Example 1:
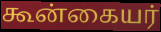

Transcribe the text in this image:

கூன்கையர்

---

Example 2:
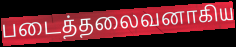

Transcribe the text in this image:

படைத்தலைவனாகிய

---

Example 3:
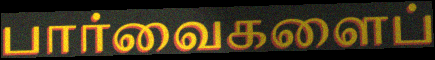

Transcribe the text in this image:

பார்வைகளைப்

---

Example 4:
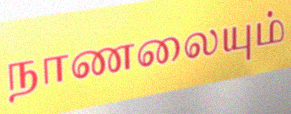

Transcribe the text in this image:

நாணலையும்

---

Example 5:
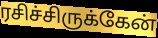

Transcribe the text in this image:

ரசிச்சிருக்கேன்